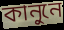
কানুনে